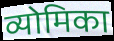
व्योमिका